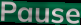
Pause